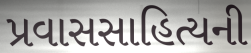
પ્રવાસસાહિત્યની